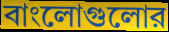
বাংলোগুলোর